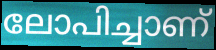
ലോപിച്ചാണ്